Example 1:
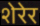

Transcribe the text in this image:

शेरेर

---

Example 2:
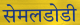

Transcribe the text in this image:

सेमलडोडी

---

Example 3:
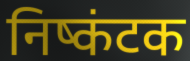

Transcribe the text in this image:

निष्कंटक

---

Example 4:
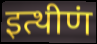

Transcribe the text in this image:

इत्थीणं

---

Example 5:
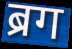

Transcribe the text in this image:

ब्रग